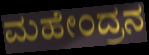
ಮಹೇಂದ್ರನ